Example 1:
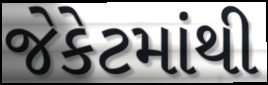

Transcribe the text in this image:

જેકેટમાંથી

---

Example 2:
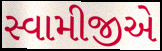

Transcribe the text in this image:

સ્વામીજીએ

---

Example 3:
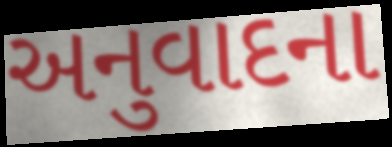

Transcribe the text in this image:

અનુવાદના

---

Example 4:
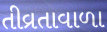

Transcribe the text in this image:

તીવ્રતાવાળા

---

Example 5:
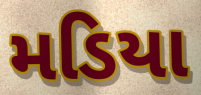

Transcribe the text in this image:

મડિયા